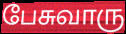
பேசுவாரு